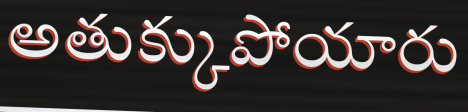
అతుక్కుపోయారు